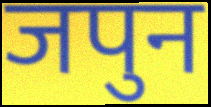
जपुन